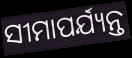
ସୀମାପର୍ଯ୍ୟନ୍ତ